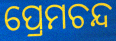
ପ୍ରେମଚନ୍ଦ